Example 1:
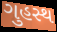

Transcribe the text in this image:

ગુહસ્થ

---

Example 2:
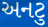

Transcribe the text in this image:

અનટુ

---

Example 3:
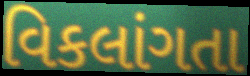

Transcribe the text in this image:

વિકલાંગતા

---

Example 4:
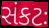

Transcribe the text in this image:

સંકટઃ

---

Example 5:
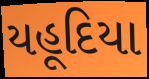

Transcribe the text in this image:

યહૂદિયા